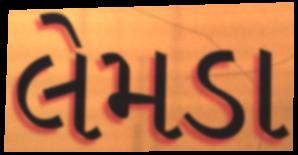
લેમડા